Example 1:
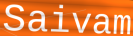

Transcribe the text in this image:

Saivam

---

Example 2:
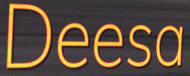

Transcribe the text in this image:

Deesa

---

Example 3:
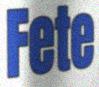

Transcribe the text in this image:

Fete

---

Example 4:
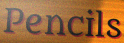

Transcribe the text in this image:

Pencils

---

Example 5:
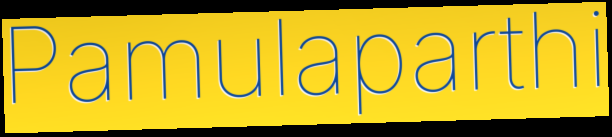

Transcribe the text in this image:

Pamulaparthi